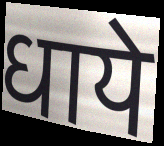
धाये